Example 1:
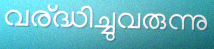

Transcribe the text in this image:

വര്ദ്ധിച്ചുവരുന്നു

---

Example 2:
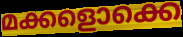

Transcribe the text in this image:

മക്കളൊക്കെ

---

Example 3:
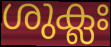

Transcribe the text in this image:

ശുക്ലഃ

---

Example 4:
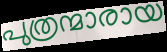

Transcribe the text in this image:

പുത്രന്മാരായ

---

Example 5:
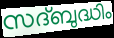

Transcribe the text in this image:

സദ്ബുദ്ധിം